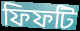
ফিফটি